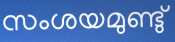
സംശയമുണ്ടു്